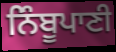
ਨਿੰਬੂਪਾਣੀ